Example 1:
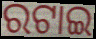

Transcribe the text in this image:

ରଟାଇ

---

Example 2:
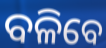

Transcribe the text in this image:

ବଳିବେ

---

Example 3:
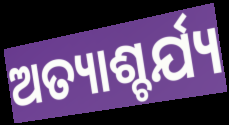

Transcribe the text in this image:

ଅତ୍ୟାଶ୍ଚର୍ଯ୍ୟ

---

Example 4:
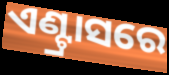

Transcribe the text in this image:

ଏଣ୍ଟ୍ରାସରେ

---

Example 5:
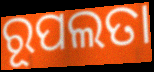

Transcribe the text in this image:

ରୂପଲତା